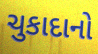
ચુકાદાનો